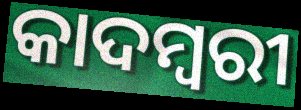
କାଦମ୍ବରୀ